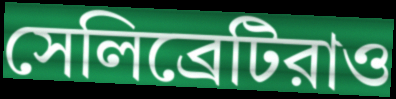
সেলিব্রেটিরাও